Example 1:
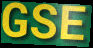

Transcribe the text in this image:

GSE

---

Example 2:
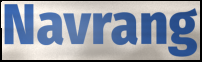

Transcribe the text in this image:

Navrang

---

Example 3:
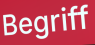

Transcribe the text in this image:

Begriff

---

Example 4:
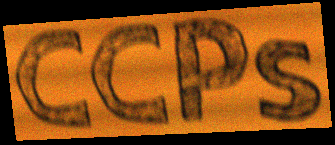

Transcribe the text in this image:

CCPs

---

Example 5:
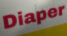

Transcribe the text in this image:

Diaper